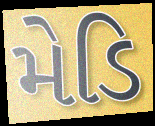
મેડિ